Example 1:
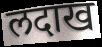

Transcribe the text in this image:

लदाख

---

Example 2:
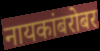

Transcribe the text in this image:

नायकांबरोबर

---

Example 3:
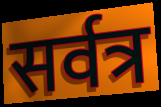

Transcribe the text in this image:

सर्वत्र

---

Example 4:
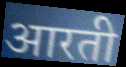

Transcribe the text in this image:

आरती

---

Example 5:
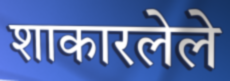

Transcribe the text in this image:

शाकारलेले